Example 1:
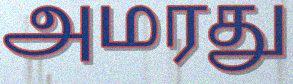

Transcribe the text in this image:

அமரது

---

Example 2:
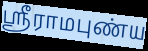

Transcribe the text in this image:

ஸ்ரீராமபுண்ய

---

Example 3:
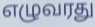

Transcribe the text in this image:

எழுவரது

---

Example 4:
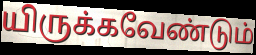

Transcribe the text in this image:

யிருக்கவேண்டும்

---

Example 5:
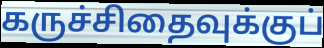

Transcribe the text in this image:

கருச்சிதைவுக்குப்